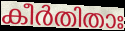
കീർതിതാഃ